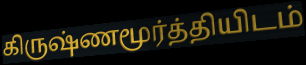
கிருஷ்ணமூர்த்தியிடம்